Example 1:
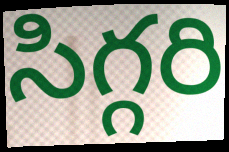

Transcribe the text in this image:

సిగ్గరి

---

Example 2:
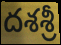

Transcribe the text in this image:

దశశ్రీ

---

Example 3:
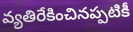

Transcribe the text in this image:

వ్యతిరేకించినప్పటికీ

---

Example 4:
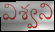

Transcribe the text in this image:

విశ్వని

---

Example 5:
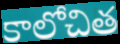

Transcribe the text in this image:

కాలోచిత